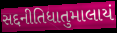
સદ્દનીતિધાતુમાલાયં